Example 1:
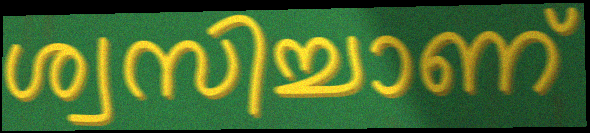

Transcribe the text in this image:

ശ്വസിച്ചാണ്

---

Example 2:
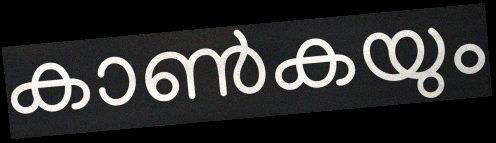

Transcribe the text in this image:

കാൺകയും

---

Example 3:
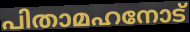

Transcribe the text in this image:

പിതാമഹനോട്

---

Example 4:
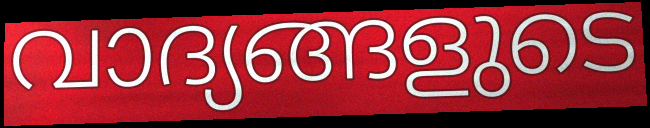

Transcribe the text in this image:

വാദ്യങ്ങളുടെ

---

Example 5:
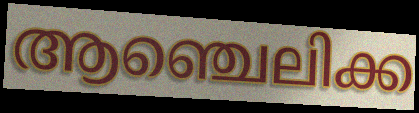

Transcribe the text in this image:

ആഞ്ചെലിക്ക